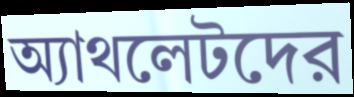
অ্যাথলেটদের